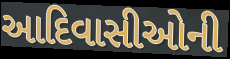
આદિવાસીઓની